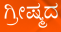
ಗ್ರೀಷ್ಮದ